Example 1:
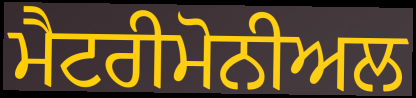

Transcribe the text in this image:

ਮੈਟਰੀਮੋਨੀਅਲ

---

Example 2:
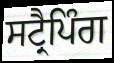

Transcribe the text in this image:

ਸਟ੍ਰੈਪਿੰਗ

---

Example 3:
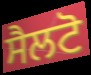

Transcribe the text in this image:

ਸੈਲਟੋ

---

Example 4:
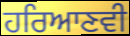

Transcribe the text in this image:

ਹਰਿਆਣਵੀ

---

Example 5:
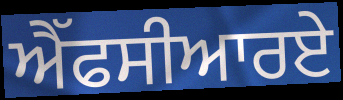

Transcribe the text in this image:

ਐੱਫਸੀਆਰਏ